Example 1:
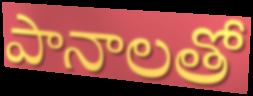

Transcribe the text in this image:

పానాలతో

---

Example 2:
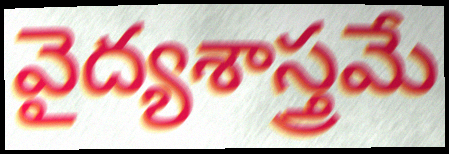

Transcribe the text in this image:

వైద్యశాస్త్రమే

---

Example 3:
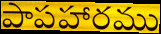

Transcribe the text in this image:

పాపహారము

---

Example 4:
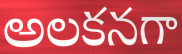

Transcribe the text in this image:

అలకనగా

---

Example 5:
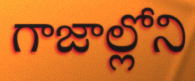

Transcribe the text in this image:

గాజాల్లోని